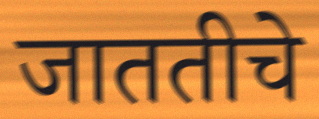
जाततीचे